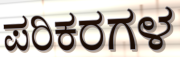
ಪರಿಕರಗಳ